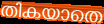
തികയാതെ